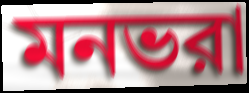
মনভরা